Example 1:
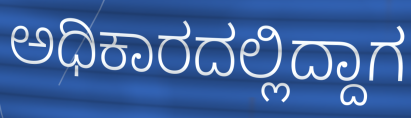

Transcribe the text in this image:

ಅಧಿಕಾರದಲ್ಲಿದ್ದಾಗ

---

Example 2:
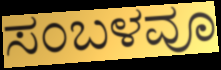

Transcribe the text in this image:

ಸಂಬಳವೂ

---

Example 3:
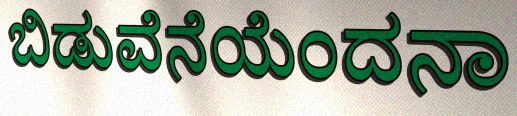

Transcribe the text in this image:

ಬಿಡುವೆನೆಯೆಂದನಾ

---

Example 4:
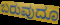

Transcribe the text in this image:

ಬರುವುದೂ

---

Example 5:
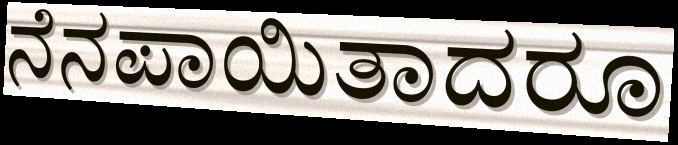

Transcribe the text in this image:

ನೆನಪಾಯಿತಾದರೂ